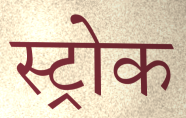
स्ट्रोक